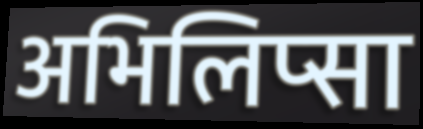
अभिलिप्सा